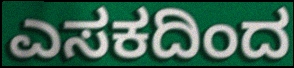
ಎಸಕದಿಂದ